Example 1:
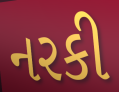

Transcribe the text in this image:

નરકી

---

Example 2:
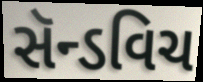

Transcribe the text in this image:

સૅન્ડવિચ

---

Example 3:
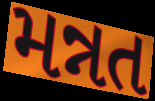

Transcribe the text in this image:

મન્નત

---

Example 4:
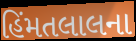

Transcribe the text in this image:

હિંમતલાલના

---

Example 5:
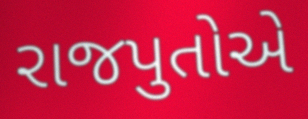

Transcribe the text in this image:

રાજપુતોએ